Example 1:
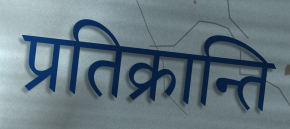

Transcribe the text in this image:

प्रतिक्रान्ति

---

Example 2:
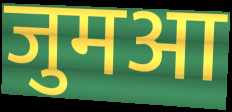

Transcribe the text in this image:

जुमआ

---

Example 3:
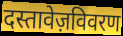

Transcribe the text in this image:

दस्तावेज़विवरण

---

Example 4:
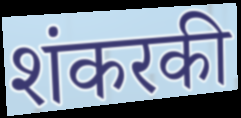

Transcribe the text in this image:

शंकरकी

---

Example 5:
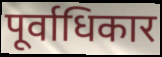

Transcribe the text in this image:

पूर्वाधिकार